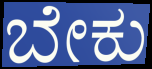
ಬೇಕು